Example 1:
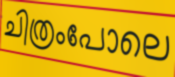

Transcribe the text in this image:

ചിത്രംപോലെ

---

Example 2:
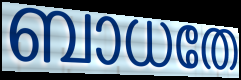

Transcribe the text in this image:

ബാധതേ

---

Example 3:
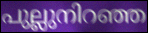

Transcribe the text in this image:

പുല്ലുനിറഞ്ഞ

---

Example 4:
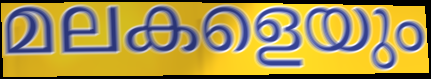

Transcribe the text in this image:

മലകളെയും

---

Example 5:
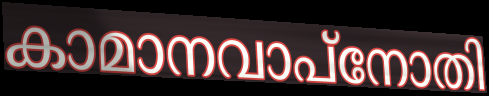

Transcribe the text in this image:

കാമാനവാപ്നോതി